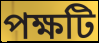
পক্ষটি